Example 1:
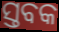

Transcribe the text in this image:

ସ୍ତବକ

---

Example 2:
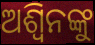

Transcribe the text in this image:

ଅଶ୍ବିନଙ୍କୁ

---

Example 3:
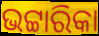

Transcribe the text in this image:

ଭଟ୍ଟାରିକା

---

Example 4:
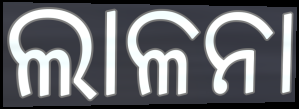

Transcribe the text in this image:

ଲାଳନା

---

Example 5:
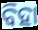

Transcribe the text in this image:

ବିହା